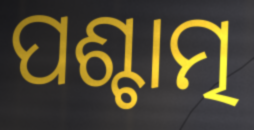
ପଶ୍ଚାତ୍ମ